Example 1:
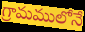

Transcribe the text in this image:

గ్రామములోనే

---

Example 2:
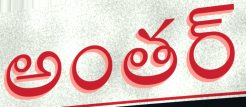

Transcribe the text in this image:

అంతర్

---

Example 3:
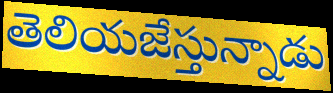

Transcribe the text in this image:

తెలియజేస్తున్నాడు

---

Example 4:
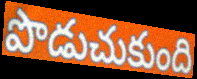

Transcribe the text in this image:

పొడుచుకుంది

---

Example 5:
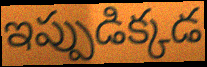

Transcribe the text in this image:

ఇప్పుడిక్కడ